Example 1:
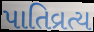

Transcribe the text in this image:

પાતિવ્રત્ય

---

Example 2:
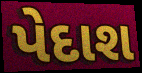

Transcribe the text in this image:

પેદાશ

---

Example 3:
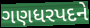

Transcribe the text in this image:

ગણધરપદને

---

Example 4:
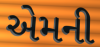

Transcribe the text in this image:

એમની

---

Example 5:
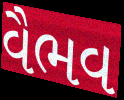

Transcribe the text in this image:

વૈભવ